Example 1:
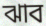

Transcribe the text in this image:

ঝাব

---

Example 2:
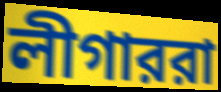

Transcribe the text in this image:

লীগাররা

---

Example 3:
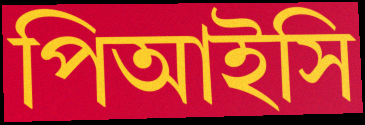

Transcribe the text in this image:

পিআইসি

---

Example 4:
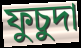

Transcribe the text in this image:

ফুচুদা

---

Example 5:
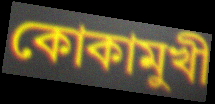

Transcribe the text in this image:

কোকামুখী